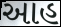
આહ